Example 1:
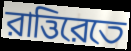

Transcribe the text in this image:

রাত্তিরেতে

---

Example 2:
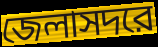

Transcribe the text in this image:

জেলাসদরে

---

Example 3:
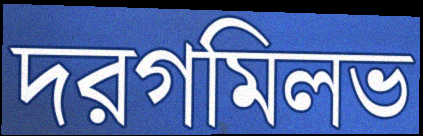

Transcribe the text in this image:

দরগমিলভ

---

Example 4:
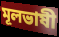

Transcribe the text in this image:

মূলভাষী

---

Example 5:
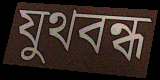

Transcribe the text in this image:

যুথবন্ধ